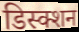
डिस्क्शन